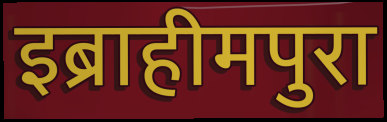
इब्राहीमपुरा